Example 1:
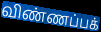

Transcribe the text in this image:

விண்ணப்பக்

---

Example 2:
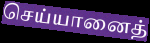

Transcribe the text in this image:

செய்யானைத்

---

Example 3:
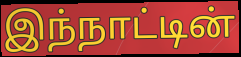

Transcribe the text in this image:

இந்நாட்டின்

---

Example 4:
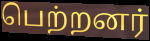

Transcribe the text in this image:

பெற்றனர்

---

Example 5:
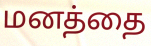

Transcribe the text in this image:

மனத்தை